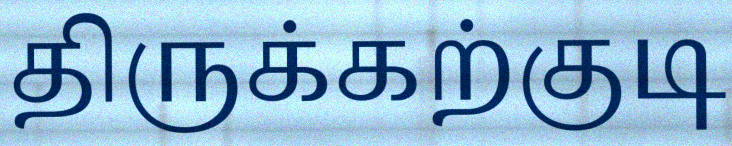
திருக்கற்குடி